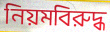
নিয়মবিরুদ্ধ